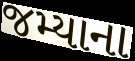
જમ્યાના